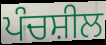
ਪੰਚਸ਼ੀਲ